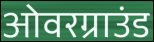
ओवरग्राउंड